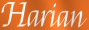
Harian